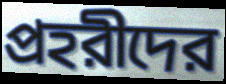
প্রহরীদের